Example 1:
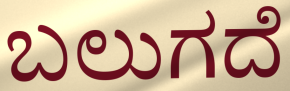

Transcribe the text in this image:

ಬಲುಗದೆ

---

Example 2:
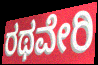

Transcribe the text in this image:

ರಥವೇರಿ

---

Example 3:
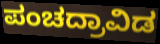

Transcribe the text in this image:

ಪಂಚದ್ರಾವಿಡ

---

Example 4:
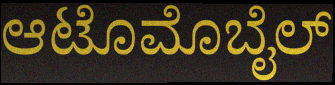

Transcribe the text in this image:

ಆಟೊಮೊಬೈಲ್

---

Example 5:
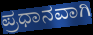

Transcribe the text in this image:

ಪ್ರಧಾನವಾಗಿ